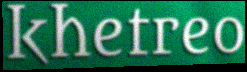
khetreo